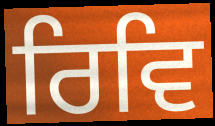
ਰਿਵਿ